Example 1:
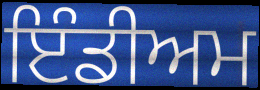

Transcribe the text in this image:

ਇੰਡੀਅਮ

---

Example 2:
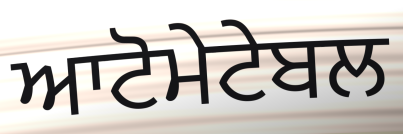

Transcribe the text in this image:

ਆਟੋਮੇਟੇਬਲ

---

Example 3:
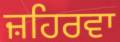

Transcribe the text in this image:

ਜ਼ਹਿਰਵਾ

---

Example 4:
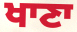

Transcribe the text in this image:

ਖਾਣਾ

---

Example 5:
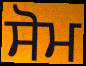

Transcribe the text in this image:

ਸੋਮ